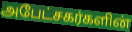
அபேட்சகர்களின்